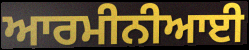
ਆਰਮੀਨੀਆਈ